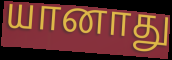
யானாது